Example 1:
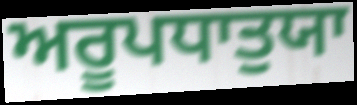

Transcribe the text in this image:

ਅਰੂਪਧਾਤੁਯਾ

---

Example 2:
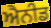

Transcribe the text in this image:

ਐਨੀਡ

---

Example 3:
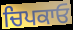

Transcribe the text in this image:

ਚਿਪਕਾਓ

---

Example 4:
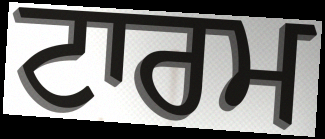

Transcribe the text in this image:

ਟਾਰਮ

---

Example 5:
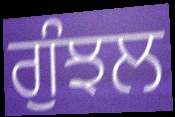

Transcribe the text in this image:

ਗੁੰਝਲ